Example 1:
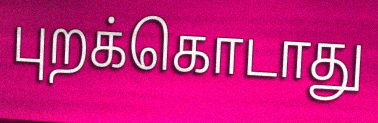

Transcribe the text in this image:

புறக்கொடாது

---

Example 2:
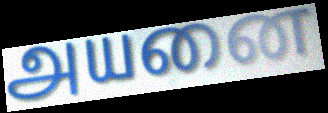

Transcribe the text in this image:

அயனை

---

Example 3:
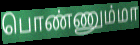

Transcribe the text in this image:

பொண்ணும்மா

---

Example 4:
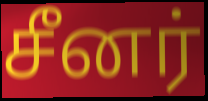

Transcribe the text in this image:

சீனர்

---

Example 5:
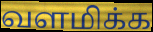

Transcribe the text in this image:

வளமிக்க